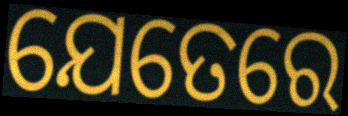
ଯେତେରେ